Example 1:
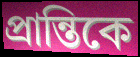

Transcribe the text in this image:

প্রান্তিকে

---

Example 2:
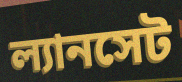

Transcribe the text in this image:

ল্যানসেট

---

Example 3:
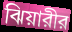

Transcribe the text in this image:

ঝিয়ারীর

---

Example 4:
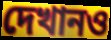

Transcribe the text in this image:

দেখানও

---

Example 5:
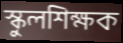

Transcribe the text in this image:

স্কুলশিক্ষক